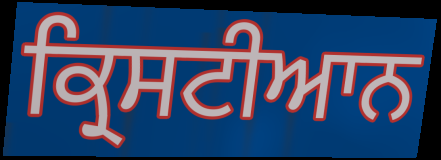
ਕ੍ਰਿਸਟੀਆਨ